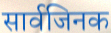
सार्वजिनक